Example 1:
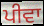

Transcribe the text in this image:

ਪੀਵਾ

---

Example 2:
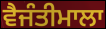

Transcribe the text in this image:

ਵੈਜੰਤੀਮਾਲਾ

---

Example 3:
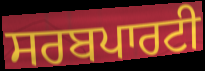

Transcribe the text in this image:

ਸਰਬਪਾਰਟੀ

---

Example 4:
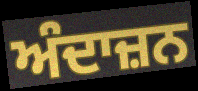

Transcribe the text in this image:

ਅੰਦਾਜ਼ਨ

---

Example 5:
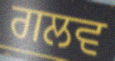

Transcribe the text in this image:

ਗਲਵ